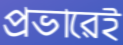
প্ৰভাৱেই